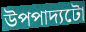
উপপাদ্যটো